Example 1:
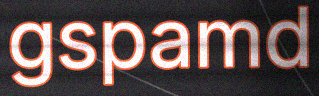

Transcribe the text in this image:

gspamd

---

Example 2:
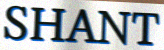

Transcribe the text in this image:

SHANT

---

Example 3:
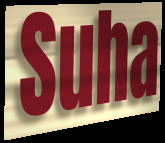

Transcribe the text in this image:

Suha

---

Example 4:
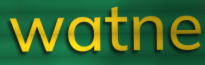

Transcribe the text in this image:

watne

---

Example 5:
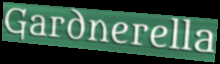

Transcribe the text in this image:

Gardnerella